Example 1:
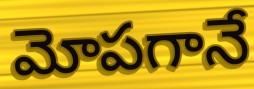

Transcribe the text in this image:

మోపగానే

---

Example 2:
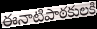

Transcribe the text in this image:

ఈనాటిపాఠకులకి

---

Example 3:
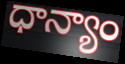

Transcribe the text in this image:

ధాన్యాం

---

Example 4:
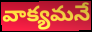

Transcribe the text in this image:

వాక్యమనే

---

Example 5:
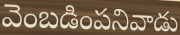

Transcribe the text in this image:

వెంబడింపనివాడు